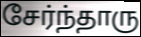
சேர்ந்தாரு